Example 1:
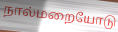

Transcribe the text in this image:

நால்மறையோடு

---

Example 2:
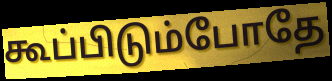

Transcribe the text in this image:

கூப்பிடும்போதே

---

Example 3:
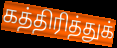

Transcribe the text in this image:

கத்திரித்துக்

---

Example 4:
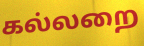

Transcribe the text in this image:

கல்லறை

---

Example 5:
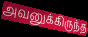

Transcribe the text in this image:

அவனுக்கிருந்த